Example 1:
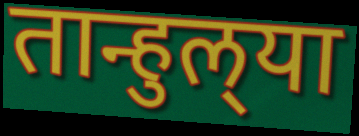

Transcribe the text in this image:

तान्हुल्या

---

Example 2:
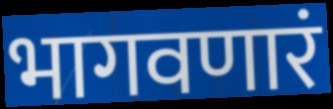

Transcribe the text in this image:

भागवणारं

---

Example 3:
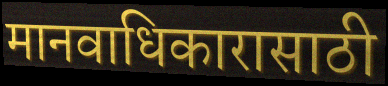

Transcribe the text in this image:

मानवाधिकारासाठी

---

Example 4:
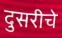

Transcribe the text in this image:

दुसरीचे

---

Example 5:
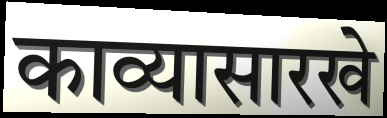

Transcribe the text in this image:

काव्यासारखे